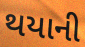
થયાની